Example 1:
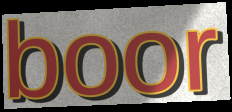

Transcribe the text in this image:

boor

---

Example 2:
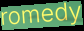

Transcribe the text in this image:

romedy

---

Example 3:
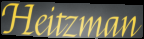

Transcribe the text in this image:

Heitzman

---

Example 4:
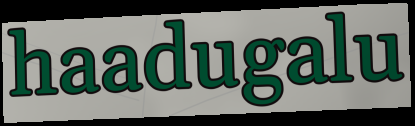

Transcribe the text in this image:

haadugalu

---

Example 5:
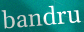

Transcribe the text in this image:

bandru